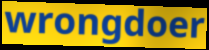
wrongdoer